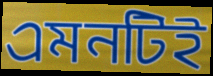
এমনটিই